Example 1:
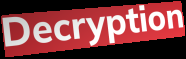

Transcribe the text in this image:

Decryption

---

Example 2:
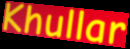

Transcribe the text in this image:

Khullar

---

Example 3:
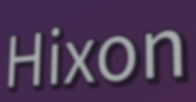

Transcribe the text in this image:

Hixon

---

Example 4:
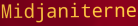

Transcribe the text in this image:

Midjaniterne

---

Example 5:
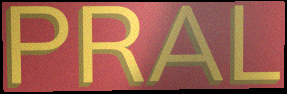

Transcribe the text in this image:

PRAL